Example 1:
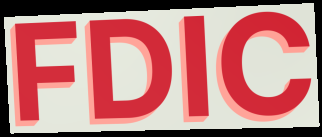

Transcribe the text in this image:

FDIC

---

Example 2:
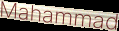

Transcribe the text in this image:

Mahammad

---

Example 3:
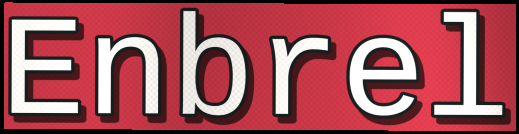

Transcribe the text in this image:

Enbrel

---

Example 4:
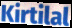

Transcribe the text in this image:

Kirtilal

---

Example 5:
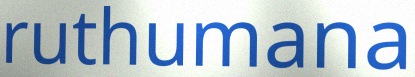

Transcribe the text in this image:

ruthumana